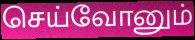
செய்வோனும்